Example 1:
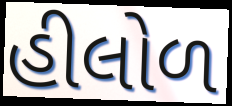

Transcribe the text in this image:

હીલોળ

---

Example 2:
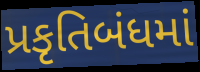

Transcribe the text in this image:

પ્રકૃતિબંધમાં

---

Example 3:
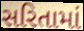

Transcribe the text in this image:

સરિતામાં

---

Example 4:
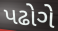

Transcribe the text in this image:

પઢોગે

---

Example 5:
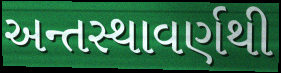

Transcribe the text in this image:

અન્તસ્થાવર્ણથી